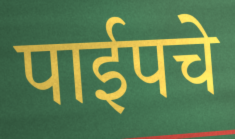
पाईपचे